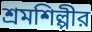
শ্রমশিল্পীর